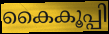
കൈകൂപ്പി